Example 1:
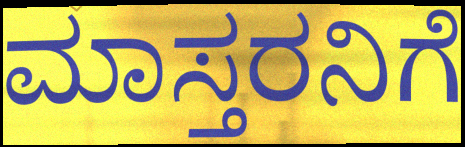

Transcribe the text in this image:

ಮಾಸ್ತರನಿಗೆ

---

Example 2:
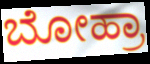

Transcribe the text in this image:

ಬೋಹ್ರಾ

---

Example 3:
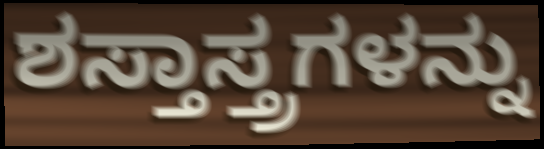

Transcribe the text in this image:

ಶಸ್ತಾಸ್ತ್ರಗಳನ್ನು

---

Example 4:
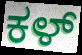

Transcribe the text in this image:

ಕಳ್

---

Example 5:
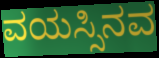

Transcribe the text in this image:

ವಯಸ್ಸಿನವ